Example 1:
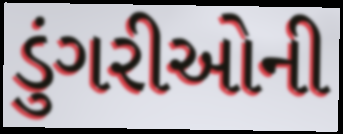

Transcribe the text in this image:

ડુંગરીઓની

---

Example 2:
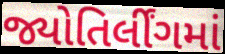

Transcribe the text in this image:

જ્યોતિર્લીંગમાં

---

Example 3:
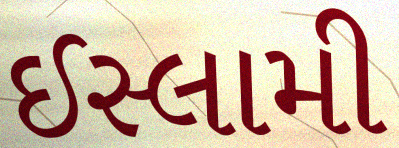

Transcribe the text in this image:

ઈસ્લામી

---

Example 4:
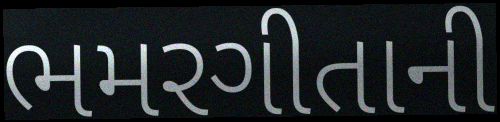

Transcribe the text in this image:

ભમરગીતાની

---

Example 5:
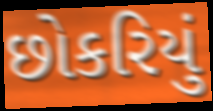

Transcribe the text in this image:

છોકરિયું